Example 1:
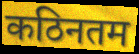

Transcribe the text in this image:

कठिनतम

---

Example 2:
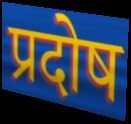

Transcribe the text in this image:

प्रदोष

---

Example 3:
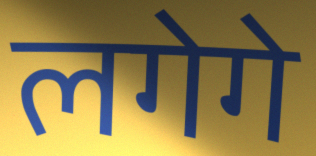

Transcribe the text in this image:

लगेगे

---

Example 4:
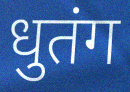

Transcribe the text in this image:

धुतंग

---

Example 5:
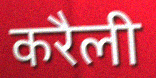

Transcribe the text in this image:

करैली